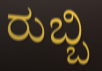
ರುಬ್ಬಿ